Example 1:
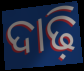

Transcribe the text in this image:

ଦାଢ଼ି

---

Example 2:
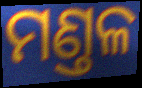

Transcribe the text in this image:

ମଣ୍ତଳ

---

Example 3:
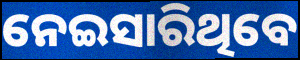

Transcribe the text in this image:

ନେଇସାରିଥିବେ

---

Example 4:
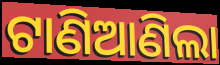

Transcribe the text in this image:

ଟାଣିଆଣିଲା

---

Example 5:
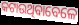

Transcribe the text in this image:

କଟାଉଥିବାବେଳେ